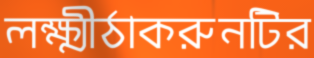
লক্ষ্মীঠাকরুনটির